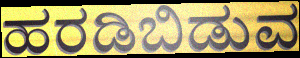
ಹರಡಿಬಿಡುವ